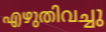
എഴുതിവച്ചു